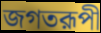
জগতরূপী